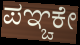
ಪಞ್ಚಕೇ